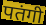
पतंगी